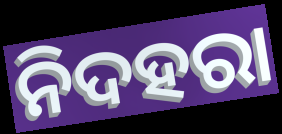
ନିଦହରା